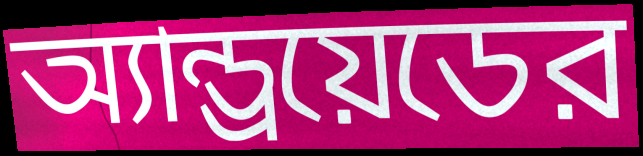
অ্যান্ড্রয়েডের